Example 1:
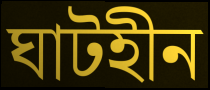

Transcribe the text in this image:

ঘাটহীন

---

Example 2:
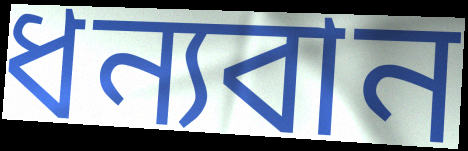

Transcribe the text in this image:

ধন্যবান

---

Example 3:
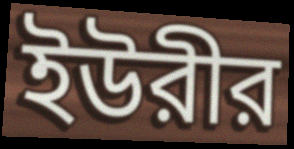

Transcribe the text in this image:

ইউরীর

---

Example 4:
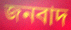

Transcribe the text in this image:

জনবাদ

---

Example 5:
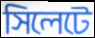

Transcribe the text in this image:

সিলেটে